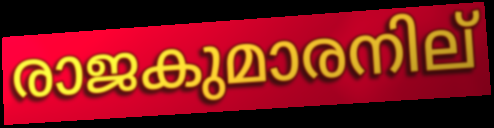
രാജകുമാരനില്